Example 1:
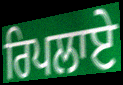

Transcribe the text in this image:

ਰਿਪਲਾਏ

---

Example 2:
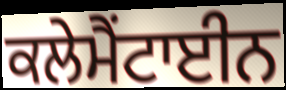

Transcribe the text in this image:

ਕਲੇਮੈਂਟਾਈਨ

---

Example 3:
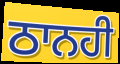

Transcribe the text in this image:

ਠਾਨਹੀ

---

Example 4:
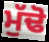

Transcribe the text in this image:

ਮੁੱਢੋ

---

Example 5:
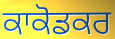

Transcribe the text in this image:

ਕਾਕੋਡਕਰ